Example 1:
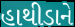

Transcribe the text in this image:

હાથીડાને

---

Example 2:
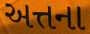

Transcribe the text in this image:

અત્તના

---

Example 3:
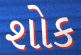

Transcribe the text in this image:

શોક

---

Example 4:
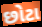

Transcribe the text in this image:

છોટા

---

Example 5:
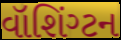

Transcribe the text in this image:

વૉશિંગ્ટન